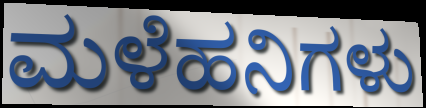
ಮಳೆಹನಿಗಳು